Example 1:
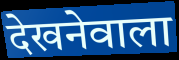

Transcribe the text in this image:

देखनेवाला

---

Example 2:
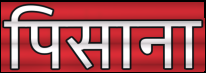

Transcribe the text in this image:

पिसाना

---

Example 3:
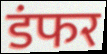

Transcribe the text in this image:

डंफर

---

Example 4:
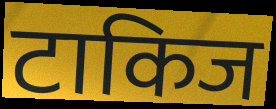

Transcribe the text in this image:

टाकिज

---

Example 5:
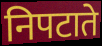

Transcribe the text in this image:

निपटाते